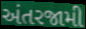
અંતરજામી